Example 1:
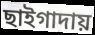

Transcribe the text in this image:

ছাইগাদায়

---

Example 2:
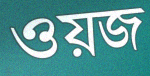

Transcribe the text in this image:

ওয়জ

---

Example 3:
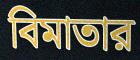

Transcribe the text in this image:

বিমাতার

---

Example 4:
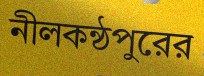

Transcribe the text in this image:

নীলকন্ঠপুরের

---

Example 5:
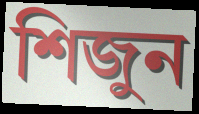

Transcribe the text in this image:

শিজুন